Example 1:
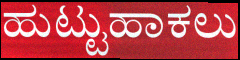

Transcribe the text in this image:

ಹುಟ್ಟುಹಾಕಲು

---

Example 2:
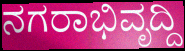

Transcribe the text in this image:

ನಗರಾಭಿವೃದ್ದಿ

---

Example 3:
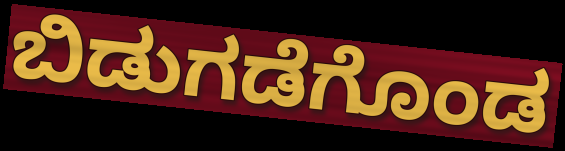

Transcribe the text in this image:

ಬಿಡುಗಡೆಗೊಂಡ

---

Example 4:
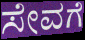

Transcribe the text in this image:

ಸೇವಗೆ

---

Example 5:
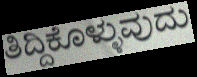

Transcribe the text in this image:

ತಿದ್ದಿಕೊಳ್ಳುವುದು